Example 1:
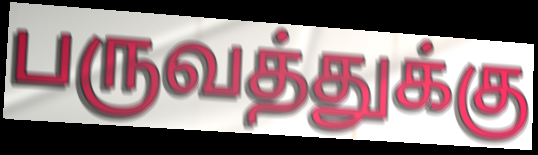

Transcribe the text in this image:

பருவத்துக்கு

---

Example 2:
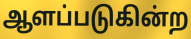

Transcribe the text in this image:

ஆளப்படுகின்ற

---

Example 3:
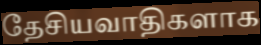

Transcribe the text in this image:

தேசியவாதிகளாக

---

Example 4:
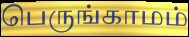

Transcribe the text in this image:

பெருங்காமம்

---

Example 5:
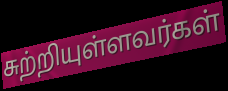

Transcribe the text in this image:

சுற்றியுள்ளவர்கள்